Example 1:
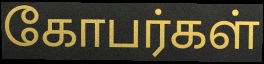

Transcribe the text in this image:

கோபர்கள்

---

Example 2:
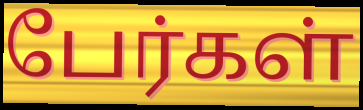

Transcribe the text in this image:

பேர்கள்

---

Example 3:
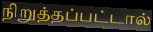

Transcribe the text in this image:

நிறுத்தப்பட்டால்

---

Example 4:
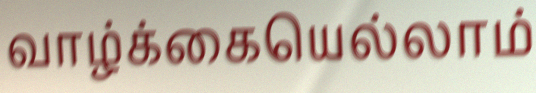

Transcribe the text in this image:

வாழ்க்கையெல்லாம்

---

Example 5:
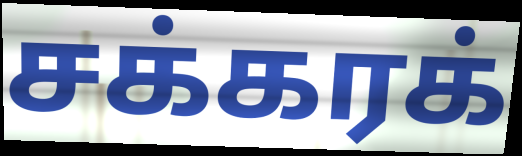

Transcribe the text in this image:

சக்கரக்